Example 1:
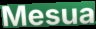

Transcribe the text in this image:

Mesua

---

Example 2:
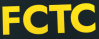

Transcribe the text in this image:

FCTC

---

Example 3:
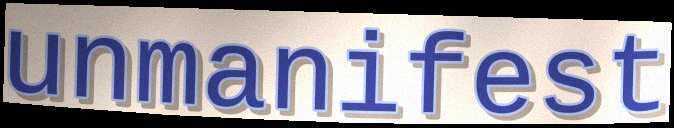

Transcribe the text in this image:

unmanifest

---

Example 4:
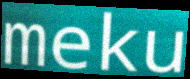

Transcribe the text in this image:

meku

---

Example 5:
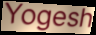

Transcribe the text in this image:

Yogesh